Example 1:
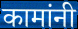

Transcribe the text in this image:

कामांनी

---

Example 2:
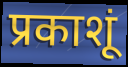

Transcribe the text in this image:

प्रकाशूं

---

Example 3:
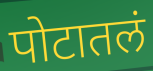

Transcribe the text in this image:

पोटातलं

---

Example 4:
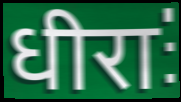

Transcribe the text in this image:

धीराः॑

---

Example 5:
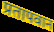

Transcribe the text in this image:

प्रतापवान